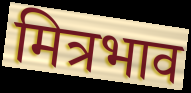
मित्रभाव